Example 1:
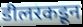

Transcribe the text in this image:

डीलरकडून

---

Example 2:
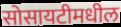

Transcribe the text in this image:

सोसायटीमधील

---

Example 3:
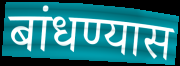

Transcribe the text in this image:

बांधण्यास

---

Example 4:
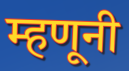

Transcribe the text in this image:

म्हणूनी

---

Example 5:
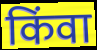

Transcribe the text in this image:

किंवा